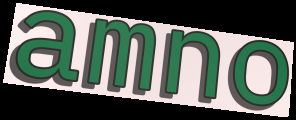
amno